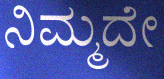
ನಿಮ್ಮದೇ